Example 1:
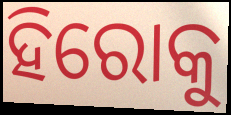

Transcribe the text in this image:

ହିରୋକୁ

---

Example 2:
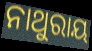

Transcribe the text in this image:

ନାଥୁରାୟ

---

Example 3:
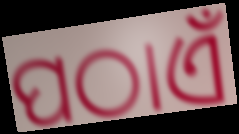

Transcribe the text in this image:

ପଠାଏଁ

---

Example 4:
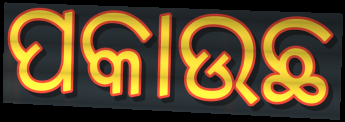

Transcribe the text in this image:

ପକାଉଛ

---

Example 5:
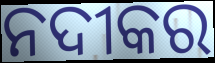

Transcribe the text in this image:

ନଦୀକର